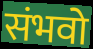
संभवो